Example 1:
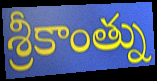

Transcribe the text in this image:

శ్రీకాంత్ను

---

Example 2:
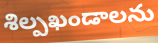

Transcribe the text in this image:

శిల్పఖండాలను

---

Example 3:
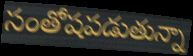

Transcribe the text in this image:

సంతోషపడుతున్నా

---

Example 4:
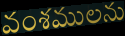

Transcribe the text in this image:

వంశములను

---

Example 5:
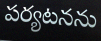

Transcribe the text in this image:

పర్యటనను